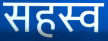
सहस्व